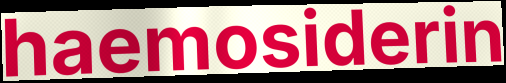
haemosiderin